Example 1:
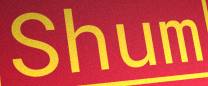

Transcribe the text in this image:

Shum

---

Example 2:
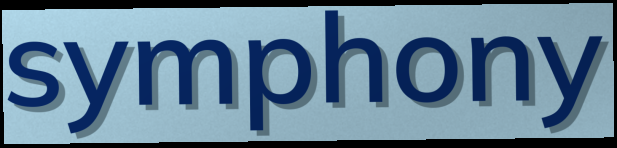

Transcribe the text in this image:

symphony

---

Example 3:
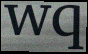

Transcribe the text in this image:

wq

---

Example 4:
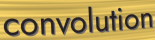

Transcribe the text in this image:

convolution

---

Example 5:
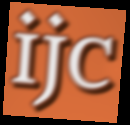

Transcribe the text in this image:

ijc